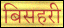
बिसहरी